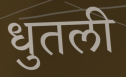
धुतली